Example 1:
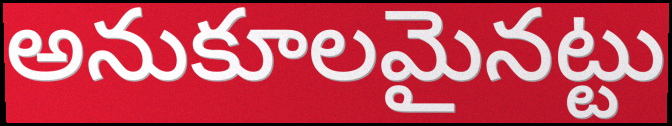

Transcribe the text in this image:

అనుకూలమైనట్టు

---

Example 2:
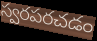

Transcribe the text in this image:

స్వరపరచడం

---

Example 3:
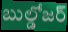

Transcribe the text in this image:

బుల్డోజర్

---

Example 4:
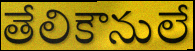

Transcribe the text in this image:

తేలికౌనులే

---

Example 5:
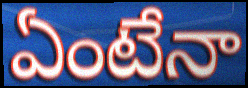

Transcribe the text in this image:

ఏంటేనా